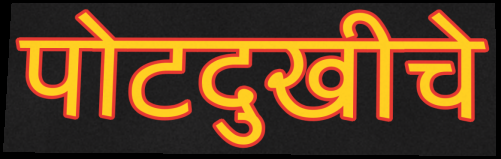
पोटदुखीचे